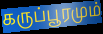
கருப்பூரமும்